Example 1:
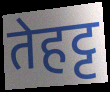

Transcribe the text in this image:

तेहट्ट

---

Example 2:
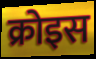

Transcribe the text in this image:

क्रोइस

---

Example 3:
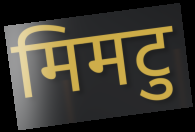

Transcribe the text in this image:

मिमटु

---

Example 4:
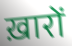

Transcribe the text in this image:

ख़ारों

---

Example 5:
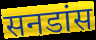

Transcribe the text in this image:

सनडांस